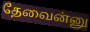
தேவைன்னு